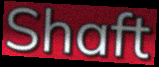
Shaft